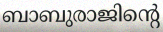
ബാബുരാജിന്റെ